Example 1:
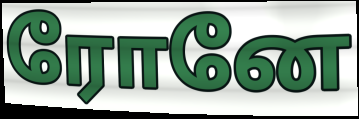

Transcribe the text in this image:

ரோனே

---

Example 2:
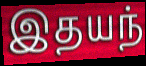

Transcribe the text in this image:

இதயந்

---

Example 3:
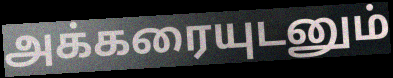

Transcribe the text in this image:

அக்கரையுடனும்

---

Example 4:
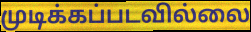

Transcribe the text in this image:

முடிக்கப்படவில்லை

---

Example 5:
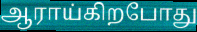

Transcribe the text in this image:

ஆராய்கிறபோது